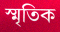
স্মৃতিক